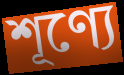
শূণ্যে